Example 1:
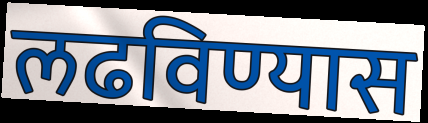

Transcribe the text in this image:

लढविण्यास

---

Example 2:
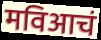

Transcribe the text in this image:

मविआचं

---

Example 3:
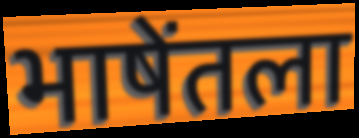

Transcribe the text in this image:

भाषेंतला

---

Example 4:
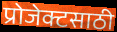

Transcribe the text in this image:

प्रोजेक्टसाठी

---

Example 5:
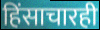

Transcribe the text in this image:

हिंसाचारही